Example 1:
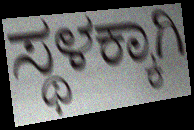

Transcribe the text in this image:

ಸ್ಥಳಕ್ಕಾಗಿ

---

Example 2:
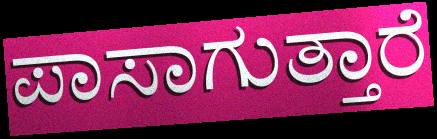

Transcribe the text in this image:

ಪಾಸಾಗುತ್ತಾರೆ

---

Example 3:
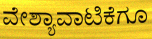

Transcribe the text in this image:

ವೇಶ್ಯಾವಾಟಿಕೆಗೂ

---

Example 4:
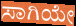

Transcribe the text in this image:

ಸಾಗಿಯೇ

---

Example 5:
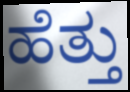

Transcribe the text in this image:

ಹೆತ್ತು